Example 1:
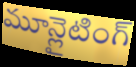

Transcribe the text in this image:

మూన్లైటింగ్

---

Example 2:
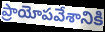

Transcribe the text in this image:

ప్రాయోపవేశానికి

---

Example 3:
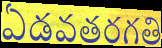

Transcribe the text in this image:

ఏడవతరగతి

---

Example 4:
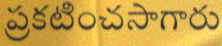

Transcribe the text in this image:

ప్రకటించసాగారు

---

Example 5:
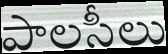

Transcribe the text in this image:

పాలసీలు